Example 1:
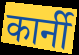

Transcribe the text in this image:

कार्नी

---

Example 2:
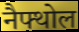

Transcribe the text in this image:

नैफ्थोल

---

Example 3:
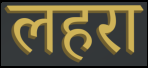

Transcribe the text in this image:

लहरा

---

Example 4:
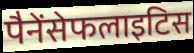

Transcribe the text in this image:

पैनेंसेफलाइटिस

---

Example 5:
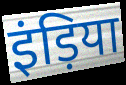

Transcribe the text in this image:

इंड़िया